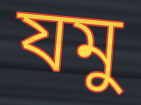
যমু